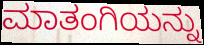
ಮಾತಂಗಿಯನ್ನು